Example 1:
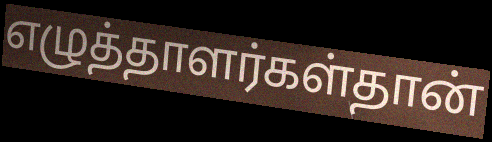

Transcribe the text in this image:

எழுத்தாளர்கள்தான்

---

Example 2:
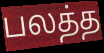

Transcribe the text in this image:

பலத்த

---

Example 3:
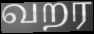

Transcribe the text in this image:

வறர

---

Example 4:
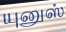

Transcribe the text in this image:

யுனுஸ்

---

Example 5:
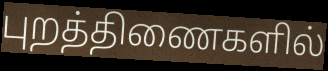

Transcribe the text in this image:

புறத்திணைகளில்